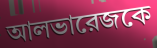
আলভারেজকে